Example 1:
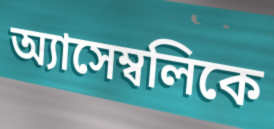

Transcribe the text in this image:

অ্যাসেম্বলিকে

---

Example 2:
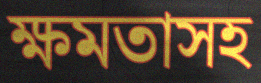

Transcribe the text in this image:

ক্ষমতাসহ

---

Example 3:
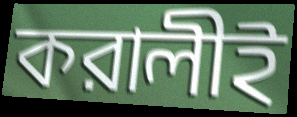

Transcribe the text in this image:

করালীই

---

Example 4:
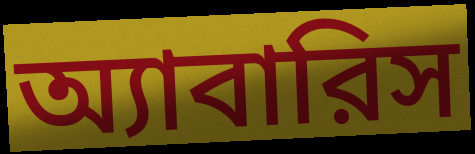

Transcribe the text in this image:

অ্যাবারিস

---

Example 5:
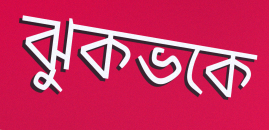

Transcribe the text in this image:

ঝুকভকে